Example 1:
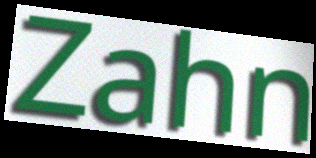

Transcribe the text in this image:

Zahn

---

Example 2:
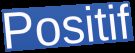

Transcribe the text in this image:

Positif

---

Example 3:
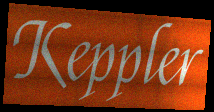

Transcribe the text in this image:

Keppler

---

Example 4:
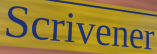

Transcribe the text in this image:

Scrivener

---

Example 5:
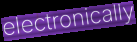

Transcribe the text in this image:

electronically